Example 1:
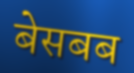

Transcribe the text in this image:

बेसबब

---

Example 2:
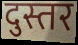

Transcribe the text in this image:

दुस्तर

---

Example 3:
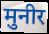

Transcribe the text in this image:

मुनीर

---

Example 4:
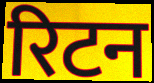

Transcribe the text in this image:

रिटन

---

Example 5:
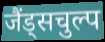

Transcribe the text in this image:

जैंड्सचुल्प